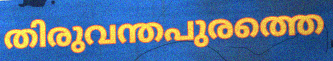
തിരുവന്തപുരത്തെ